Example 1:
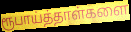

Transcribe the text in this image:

ரூபாய்த்தாள்களை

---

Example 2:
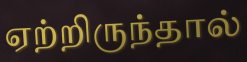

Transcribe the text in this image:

ஏற்றிருந்தால்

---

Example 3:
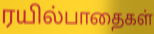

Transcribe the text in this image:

ரயில்பாதைகள்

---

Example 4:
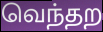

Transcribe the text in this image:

வெந்தற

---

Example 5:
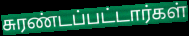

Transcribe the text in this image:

சுரண்டப்பட்டார்கள்